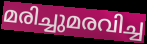
മരിച്ചുമരവിച്ച